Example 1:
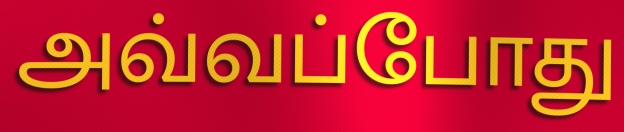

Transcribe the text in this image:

அவ்வப்போது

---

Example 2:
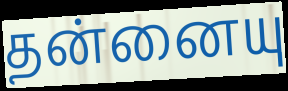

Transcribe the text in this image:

தன்னையு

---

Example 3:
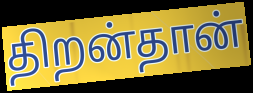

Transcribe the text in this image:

திறன்தான்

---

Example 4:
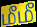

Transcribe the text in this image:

மீமீ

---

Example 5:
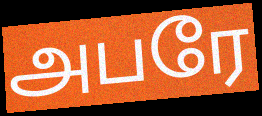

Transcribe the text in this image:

அபரே